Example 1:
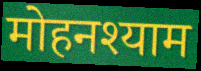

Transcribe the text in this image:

मोहनश्याम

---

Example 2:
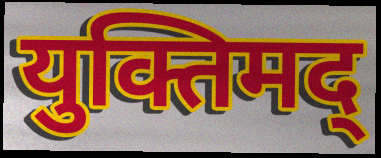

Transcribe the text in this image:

युक्तिमद्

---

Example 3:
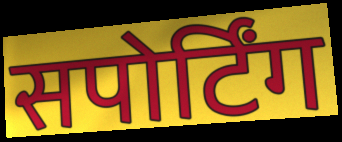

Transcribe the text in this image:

सपोर्टिंग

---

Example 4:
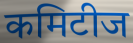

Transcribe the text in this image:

कमिटीज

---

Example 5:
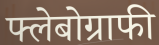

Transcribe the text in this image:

फ्लेबोग्राफी